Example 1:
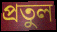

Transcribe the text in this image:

প্রতুল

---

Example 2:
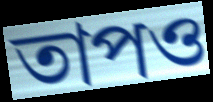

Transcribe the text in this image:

তাপও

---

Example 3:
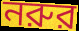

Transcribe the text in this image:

নরুর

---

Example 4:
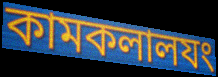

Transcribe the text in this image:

কামকলালযং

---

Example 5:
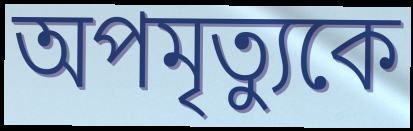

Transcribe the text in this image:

অপমৃত্যুকে